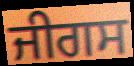
ਜੀਗਸ